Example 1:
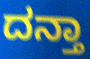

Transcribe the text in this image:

ದನ್ತಾ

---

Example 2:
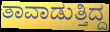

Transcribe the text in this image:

ತಾವಾಡುತ್ತಿದ್ದ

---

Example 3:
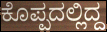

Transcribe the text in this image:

ಕೊಪ್ಪದಲ್ಲಿದ್ದ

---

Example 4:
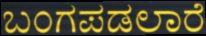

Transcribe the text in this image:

ಬಂಗಪಡಲಾರೆ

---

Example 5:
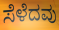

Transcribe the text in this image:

ಸೆಳೆದವು